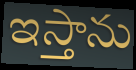
ఇస్తాను